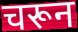
चरून